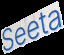
Seeta